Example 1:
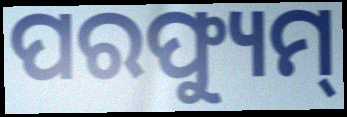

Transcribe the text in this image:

ପରଫ୍ୟୁମ୍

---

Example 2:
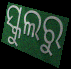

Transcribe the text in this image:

ସ୍କୁଲରୁ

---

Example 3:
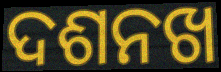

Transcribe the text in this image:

ଦଶନଖ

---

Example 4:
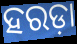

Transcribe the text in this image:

ହରଡ଼ା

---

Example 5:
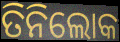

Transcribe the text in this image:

ତିନିଲୋକ